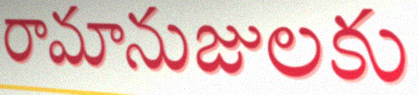
రామానుజులకు